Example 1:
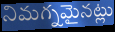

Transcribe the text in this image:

నిమగ్నమైనట్లు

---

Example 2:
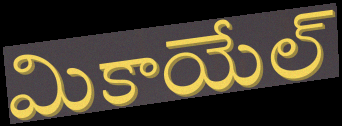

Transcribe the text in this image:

మికాయేల్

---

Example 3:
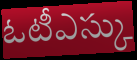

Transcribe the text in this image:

ఓటీఎస్కు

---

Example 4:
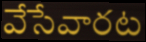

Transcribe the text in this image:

వేసేవారట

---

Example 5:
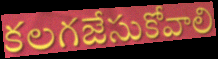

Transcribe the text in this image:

కలగజేసుకోవాలి